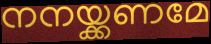
നനയ്ക്കണമേ